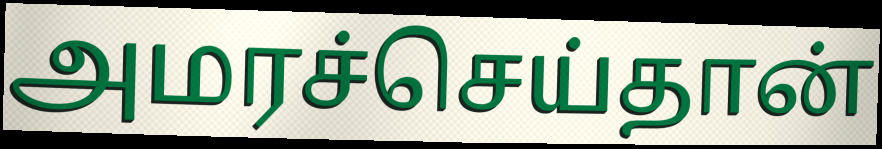
அமரச்செய்தான்